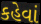
કહેવાં